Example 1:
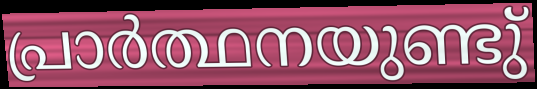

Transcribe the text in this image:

പ്രാർത്ഥനയുണ്ടു്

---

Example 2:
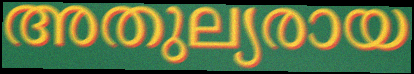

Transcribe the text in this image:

അതുല്യരായ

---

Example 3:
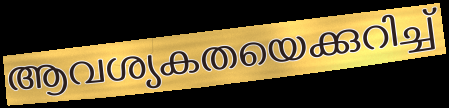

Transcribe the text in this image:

ആവശ്യകതയെക്കുറിച്ച്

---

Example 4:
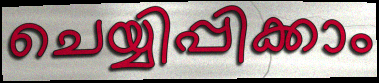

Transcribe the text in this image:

ചെയ്യിപ്പിക്കാം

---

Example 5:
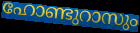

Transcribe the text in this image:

ഹോണ്ടുറാസും